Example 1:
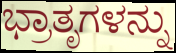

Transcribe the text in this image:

ಭ್ರಾತೃಗಳನ್ನು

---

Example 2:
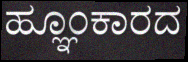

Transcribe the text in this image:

ಹ್ಞೂಂಕಾರದ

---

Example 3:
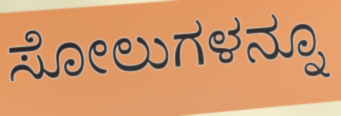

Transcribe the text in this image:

ಸೋಲುಗಳನ್ನೂ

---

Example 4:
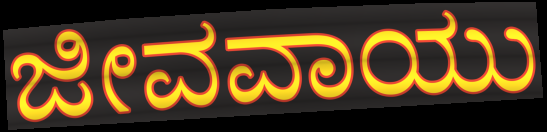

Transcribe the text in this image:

ಜೀವವಾಯು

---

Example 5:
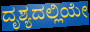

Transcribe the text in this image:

ದೃಶ್ಯದಲ್ಲಿಯೇ